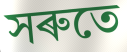
সৰুতে